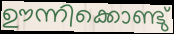
ഊന്നിക്കൊണ്ടു്